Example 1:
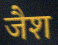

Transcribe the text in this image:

जैश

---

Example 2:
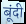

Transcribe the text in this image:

बूंदी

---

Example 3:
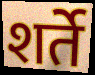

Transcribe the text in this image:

शर्ते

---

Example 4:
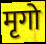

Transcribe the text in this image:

मृगो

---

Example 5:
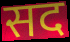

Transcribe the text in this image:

सद